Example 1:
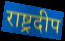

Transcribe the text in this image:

राष्ट्रदीप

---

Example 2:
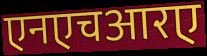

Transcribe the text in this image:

एनएचआरए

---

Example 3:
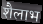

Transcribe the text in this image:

शैलाभ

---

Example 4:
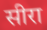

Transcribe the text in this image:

सीरा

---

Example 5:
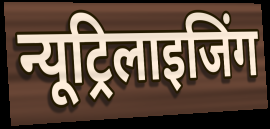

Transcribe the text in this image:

न्यूट्रिलाइजिंग